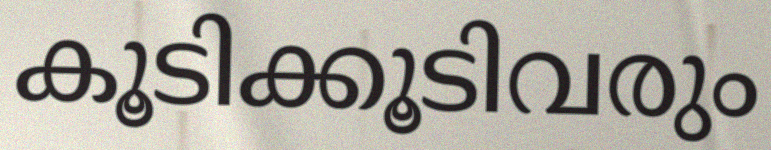
കൂടിക്കൂടിവരും